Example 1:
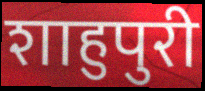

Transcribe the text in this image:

शाहुपुरी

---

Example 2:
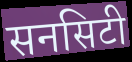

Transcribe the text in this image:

सनसिटी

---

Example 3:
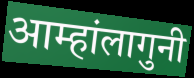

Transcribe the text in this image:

आम्हांलागुनी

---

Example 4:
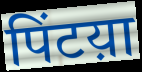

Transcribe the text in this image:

पिंटय़ा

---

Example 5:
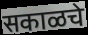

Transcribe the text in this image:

सकाळचे